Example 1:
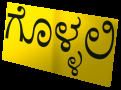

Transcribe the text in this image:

ಗೊಳ್ಳಲಿ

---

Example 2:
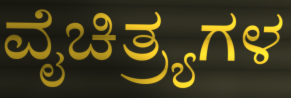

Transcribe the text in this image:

ವೈಚಿತ್ರ್ಯಗಳ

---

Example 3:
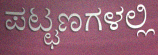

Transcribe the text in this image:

ಪಟ್ಟಣಗಳಲ್ಲಿ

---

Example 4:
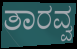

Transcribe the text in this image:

ತಾರವ್ವ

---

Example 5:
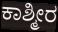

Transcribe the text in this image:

ಕಾಶ್ಮೀರ